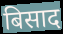
बिसाद